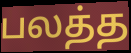
பலத்த